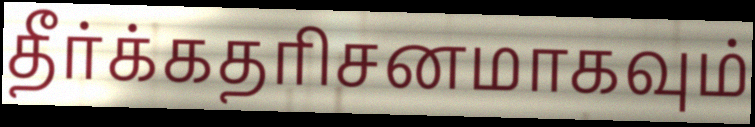
தீர்க்கதரிசனமாகவும்